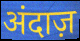
अंदाज़